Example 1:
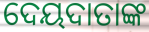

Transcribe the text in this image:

ଦେୟଦାତାଙ୍କ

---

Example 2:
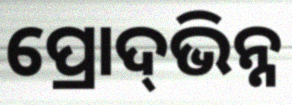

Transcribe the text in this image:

ପ୍ରୋଦ୍‌ଭିନ୍ନ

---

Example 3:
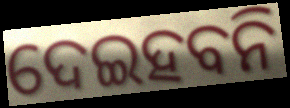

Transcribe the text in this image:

ଦେଇହବନି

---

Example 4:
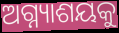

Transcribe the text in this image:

ଅଗ୍ନ୍ୟାଶୟକୁ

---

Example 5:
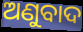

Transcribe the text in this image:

ଅଣୁବାଦ